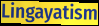
Lingayatism